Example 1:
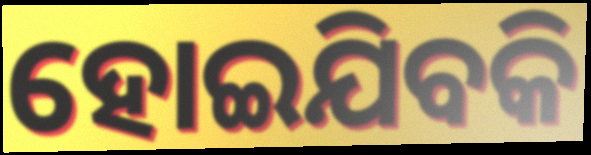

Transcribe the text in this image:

ହୋଇଯିବକି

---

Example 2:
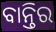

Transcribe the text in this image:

ବାନ୍ତିର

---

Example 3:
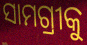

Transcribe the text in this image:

ସାମଗ୍ରୀକୁ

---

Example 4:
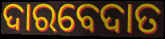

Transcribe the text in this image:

ଦାରବେଦାତ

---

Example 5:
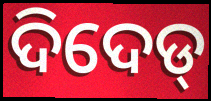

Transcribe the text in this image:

ଦିଦେଡ୍